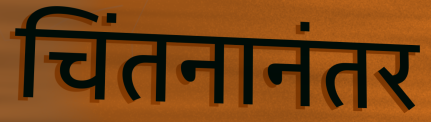
चिंतनानंतर